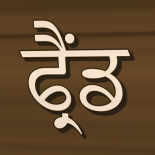
ਫ੍ਰੈਂਡ